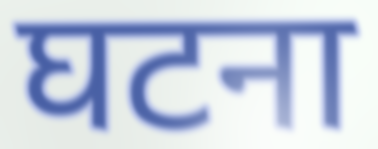
घटना